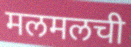
मलमलची